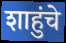
शाहुंचे